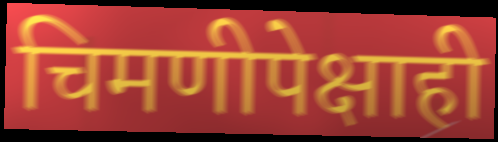
चिमणीपेक्षाही